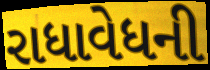
રાધાવેધની